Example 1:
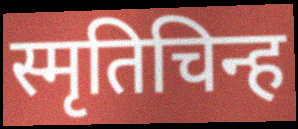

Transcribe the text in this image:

स्मृतिचिन्ह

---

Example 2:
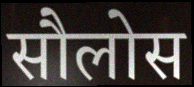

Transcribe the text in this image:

सौलोस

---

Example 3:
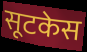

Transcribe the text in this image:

सूटकेस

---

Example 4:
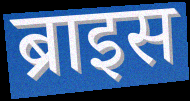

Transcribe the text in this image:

ब्राइस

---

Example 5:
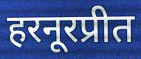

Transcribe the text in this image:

हरनूरप्रीत